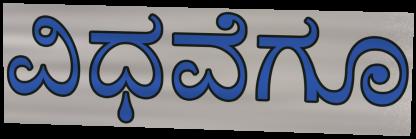
ವಿಧವೆಗೂ